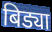
बिड्या